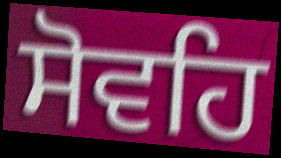
ਸੋਵਹਿ